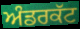
ਅੰਡਰਕੱਟ